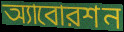
অ্যাবোরশন